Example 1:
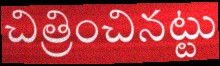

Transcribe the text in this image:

చిత్రించినట్టు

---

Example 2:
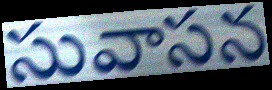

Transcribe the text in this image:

సువాసన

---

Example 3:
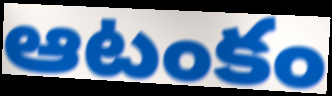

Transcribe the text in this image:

ఆటంకం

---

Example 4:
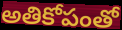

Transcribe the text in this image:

అతికోపంతో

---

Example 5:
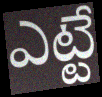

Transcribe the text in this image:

ఎట్టే